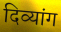
दिव्यांग